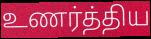
உணர்த்திய